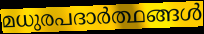
മധുരപദാർത്ഥങ്ങൾ